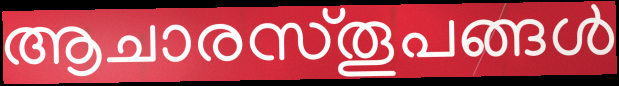
ആചാരസ്തൂപങ്ങൾ